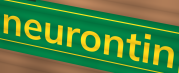
neurontin